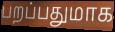
பறப்பதுமாக